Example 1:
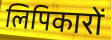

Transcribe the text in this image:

लिपिकारों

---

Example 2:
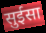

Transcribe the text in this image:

सुईसा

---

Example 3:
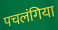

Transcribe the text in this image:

पचलंगिया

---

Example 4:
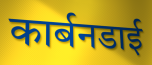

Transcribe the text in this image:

कार्बनडाई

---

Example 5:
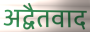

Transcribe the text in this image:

अद्वैतवाद